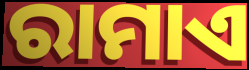
ରାମାଏ